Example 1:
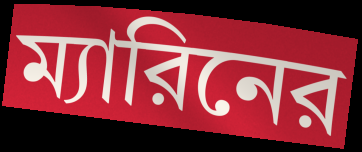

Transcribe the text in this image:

ম্যারিনের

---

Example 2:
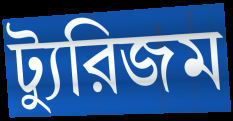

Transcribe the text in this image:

ট্যুরিজম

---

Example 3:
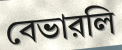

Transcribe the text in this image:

বেভারলি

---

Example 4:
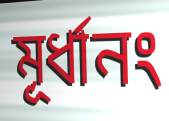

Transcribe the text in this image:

মূর্ধানং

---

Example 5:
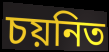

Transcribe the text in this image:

চয়নিত